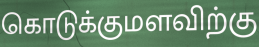
கொடுக்குமளவிற்கு